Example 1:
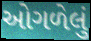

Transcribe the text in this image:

ઓગળેલું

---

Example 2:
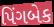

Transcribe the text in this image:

પિંગબેક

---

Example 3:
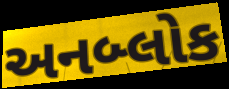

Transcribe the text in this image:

અનબ્લોક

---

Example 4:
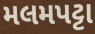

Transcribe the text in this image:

મલમપટ્ટા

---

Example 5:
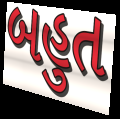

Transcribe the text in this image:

બહુત